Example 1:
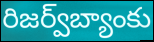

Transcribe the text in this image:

రిజర్వ్‌బ్యాంకు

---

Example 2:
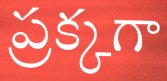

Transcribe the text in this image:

ప్రక్కగా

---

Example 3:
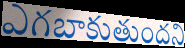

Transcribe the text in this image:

ఎగబాకుతుందని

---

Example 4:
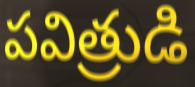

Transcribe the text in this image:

పవిత్రుడి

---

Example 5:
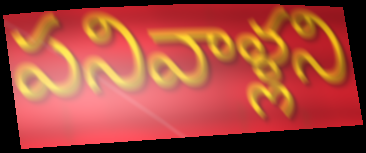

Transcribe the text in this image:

పనివాళ్లని